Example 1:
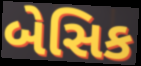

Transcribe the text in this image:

બેસિક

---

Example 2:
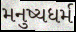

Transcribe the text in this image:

મનુષ્યધર્મ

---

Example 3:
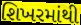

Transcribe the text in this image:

શિખરમાંથી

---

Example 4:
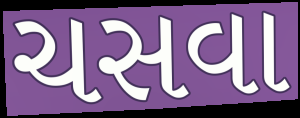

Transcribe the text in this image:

ચસવા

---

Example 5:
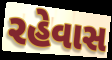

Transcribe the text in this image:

રહેવાસ